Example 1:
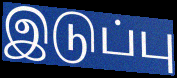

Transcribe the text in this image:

இடுப்பு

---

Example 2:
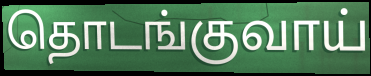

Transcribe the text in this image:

தொடங்குவாய்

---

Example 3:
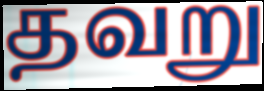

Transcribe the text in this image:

தவறு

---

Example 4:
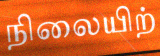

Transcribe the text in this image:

நிலையிற்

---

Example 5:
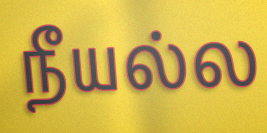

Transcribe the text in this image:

நீயல்ல